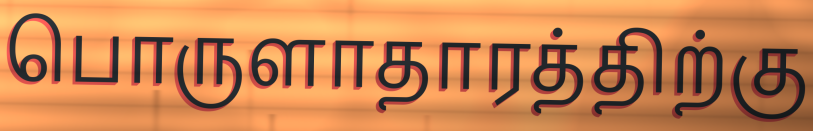
பொருளாதாரத்திற்கு